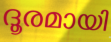
ദൂരമായി